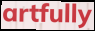
artfully